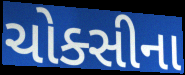
ચોક્સીના